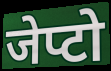
जेप्टो